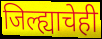
जिल्ह्याचेही